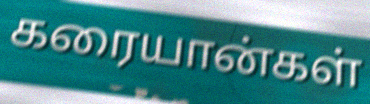
கரையான்கள்